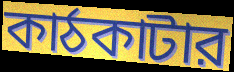
কাঠকাটার